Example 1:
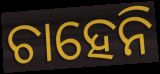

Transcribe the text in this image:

ଚାହେନି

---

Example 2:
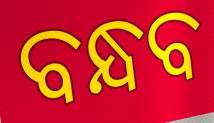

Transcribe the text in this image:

ବନ୍ଧବ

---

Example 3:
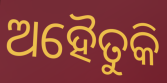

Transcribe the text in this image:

ଅହୈତୁକି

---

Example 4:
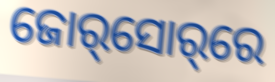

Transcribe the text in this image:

ଜୋର୍‌ସୋର୍‌ରେ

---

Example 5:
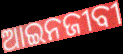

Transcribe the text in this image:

ଆଇନଜୀବୀ